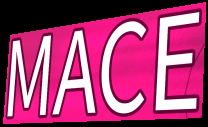
MACE